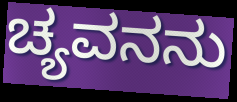
ಚ್ಯವನನು